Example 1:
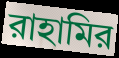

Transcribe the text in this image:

রাহামির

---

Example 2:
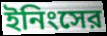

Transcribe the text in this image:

ইনিংসের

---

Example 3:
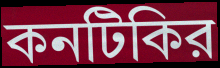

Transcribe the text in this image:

কনটিকির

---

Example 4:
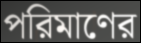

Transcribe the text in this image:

পরিমাণের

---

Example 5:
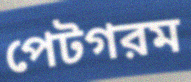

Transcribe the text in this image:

পেটগরম